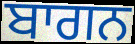
ਬਾਗਨ